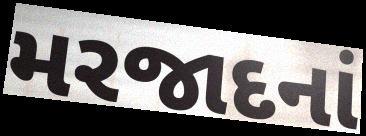
મરજાદનાં